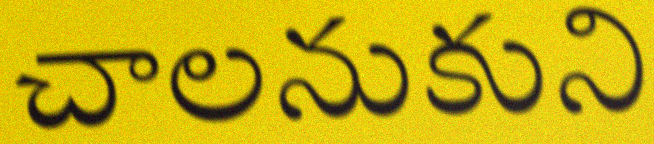
చాలనుకుని